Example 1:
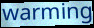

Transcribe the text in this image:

warming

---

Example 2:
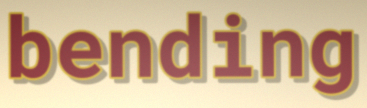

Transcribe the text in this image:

bending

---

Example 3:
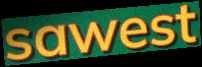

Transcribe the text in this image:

sawest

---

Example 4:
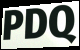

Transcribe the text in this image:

PDQ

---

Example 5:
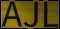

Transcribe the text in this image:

AJL